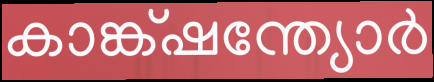
കാങ്ക്ഷന്ത്യോർ